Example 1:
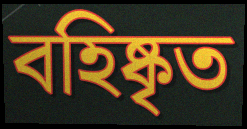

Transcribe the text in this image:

বহিষ্কৃত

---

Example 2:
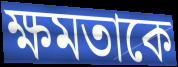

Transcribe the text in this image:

ক্ষমতাকে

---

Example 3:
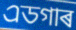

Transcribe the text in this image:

এডগাৰ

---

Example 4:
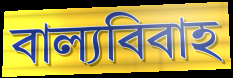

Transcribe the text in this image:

বাল্যবিবাহ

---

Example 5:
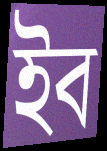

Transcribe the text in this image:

ইব